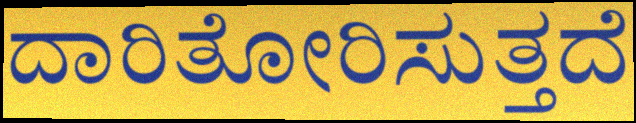
ದಾರಿತೋರಿಸುತ್ತದೆ